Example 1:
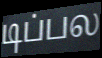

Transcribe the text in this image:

டிப்பல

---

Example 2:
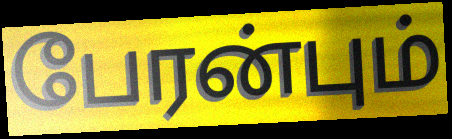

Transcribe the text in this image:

பேரன்பும்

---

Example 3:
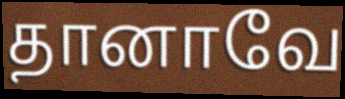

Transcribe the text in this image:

தானாவே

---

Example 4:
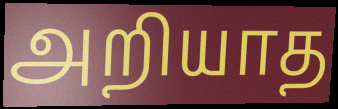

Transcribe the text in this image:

அறியாத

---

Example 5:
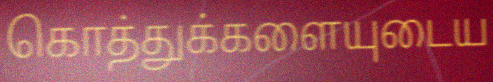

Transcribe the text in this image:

கொத்துக்களையுடைய